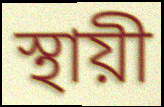
স্থায়ী